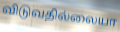
விடுவதில்லையா